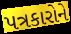
પત્રકારોને